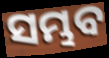
ସମ୍ଭବ